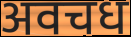
अवचध